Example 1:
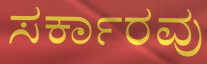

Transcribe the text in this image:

ಸರ್ಕಾರವು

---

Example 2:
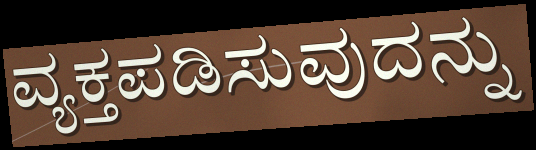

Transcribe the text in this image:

ವ್ಯಕ್ತಪಡಿಸುವುದನ್ನು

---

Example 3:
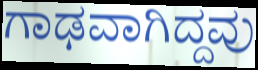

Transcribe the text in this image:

ಗಾಢವಾಗಿದ್ದವು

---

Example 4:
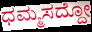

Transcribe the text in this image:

ಧಮ್ಮಸದ್ದೋ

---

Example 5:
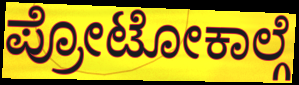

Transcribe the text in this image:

ಪ್ರೋಟೋಕಾಲ್ಗೆ